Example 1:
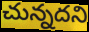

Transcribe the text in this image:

చున్నదని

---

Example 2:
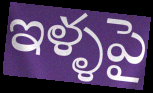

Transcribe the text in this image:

ఇళ్ళపై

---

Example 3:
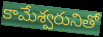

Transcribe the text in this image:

కామేశ్వరునితో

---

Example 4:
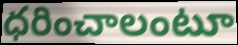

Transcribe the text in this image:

ధరించాలంటూ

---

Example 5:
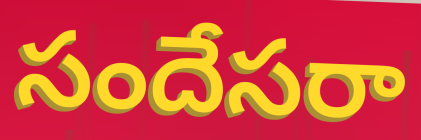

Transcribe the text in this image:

సందేసరా